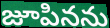
జూపినను